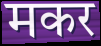
मकर